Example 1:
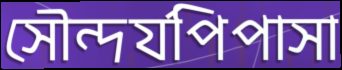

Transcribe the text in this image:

সৌন্দৰ্যপিপাসা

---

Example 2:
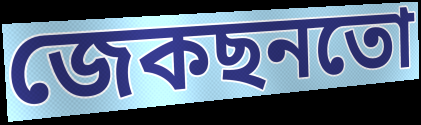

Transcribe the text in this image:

জেকছনতো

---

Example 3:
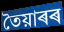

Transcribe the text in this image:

তৈয়াৰৰ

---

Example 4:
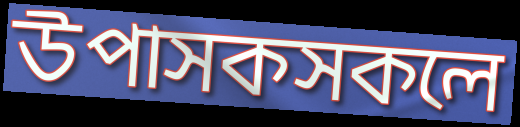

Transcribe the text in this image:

উপাসকসকলে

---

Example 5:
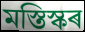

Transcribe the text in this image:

মস্তিস্কৰ